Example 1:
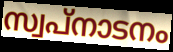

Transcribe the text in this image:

സ്വപ്നാടനം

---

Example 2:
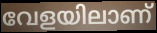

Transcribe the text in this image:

വേളയിലാണ്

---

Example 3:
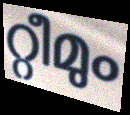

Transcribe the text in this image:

റ്റീമും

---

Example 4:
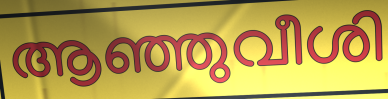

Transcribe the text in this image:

ആഞ്ഞുവീശി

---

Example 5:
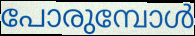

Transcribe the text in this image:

പോരുമ്പോൾ